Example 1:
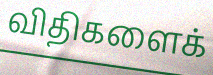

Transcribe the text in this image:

விதிகளைக்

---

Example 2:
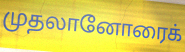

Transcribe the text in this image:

முதலானோரைக்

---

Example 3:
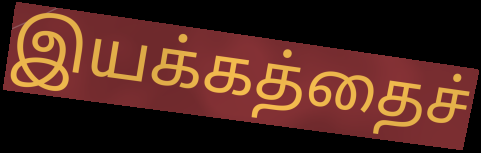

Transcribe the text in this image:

இயக்கத்தைச்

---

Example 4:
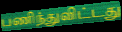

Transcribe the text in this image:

பணிந்துவிட்டது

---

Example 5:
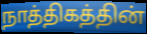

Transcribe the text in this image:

நாத்திகத்தின்